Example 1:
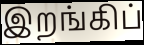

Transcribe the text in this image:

இறங்கிப்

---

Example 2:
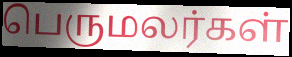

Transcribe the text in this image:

பெருமலர்கள்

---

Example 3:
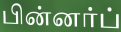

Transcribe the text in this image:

பின்னர்ப்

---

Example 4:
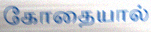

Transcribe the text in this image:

கோதையால்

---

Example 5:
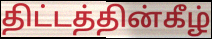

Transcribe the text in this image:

திட்டத்தின்கீழ்